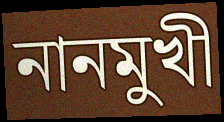
নানমুখী